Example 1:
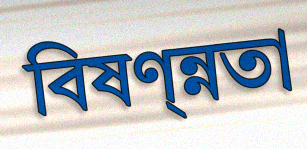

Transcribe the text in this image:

বিষণ্ন্নতা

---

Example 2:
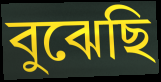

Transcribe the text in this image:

বুঝেছি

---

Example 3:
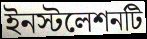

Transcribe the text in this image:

ইনস্টলেশনটি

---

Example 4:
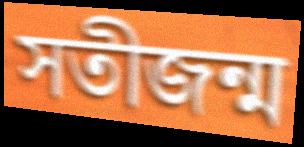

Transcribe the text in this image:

সতীজন্ম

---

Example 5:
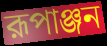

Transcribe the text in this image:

রূপাঞ্জন